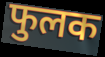
फुलक